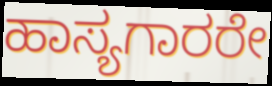
ಹಾಸ್ಯಗಾರರೇ